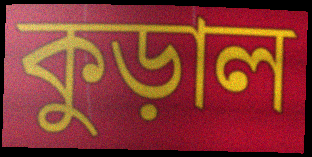
কুড়াল